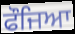
ਫੌਜਿਆ